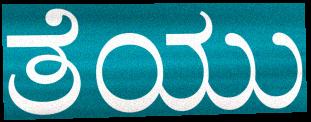
ತೆಯು